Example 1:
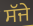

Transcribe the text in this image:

ਸੱਜੇ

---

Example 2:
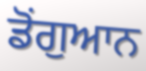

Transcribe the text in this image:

ਡੋਂਗੁਆਨ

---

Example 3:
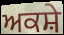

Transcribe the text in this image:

ਅਕਸ਼ੇ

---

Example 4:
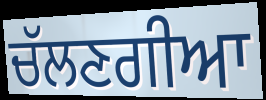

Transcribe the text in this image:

ਚੱਲਣਗੀਆ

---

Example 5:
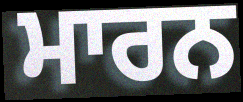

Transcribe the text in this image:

ਮਾਰਨ